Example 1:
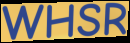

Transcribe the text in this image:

WHSR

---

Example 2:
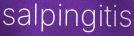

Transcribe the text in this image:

salpingitis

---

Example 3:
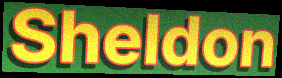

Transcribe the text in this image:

Sheldon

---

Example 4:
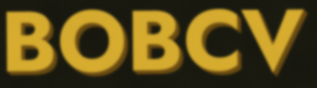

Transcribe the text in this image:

BOBCV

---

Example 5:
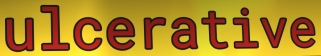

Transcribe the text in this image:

ulcerative